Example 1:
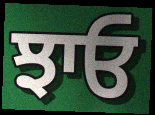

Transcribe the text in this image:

ਝਾਓ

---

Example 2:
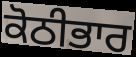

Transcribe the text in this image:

ਕੋਠੀਭਾਰ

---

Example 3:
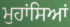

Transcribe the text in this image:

ਮੁਹਾਂਸਿਆਂ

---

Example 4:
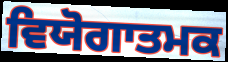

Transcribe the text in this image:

ਵਿਯੋਗਾਤਮਕ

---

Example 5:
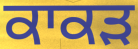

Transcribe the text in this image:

ਕਾਕੜ